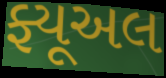
ફ્યૂઅલ